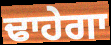
ਢਾਹੇਗਾ